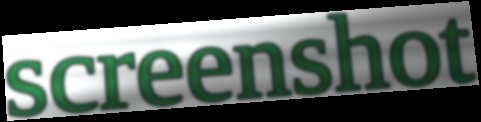
screenshot